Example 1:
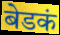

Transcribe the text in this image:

बेडकं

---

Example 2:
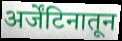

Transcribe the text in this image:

अर्जेंटिनातून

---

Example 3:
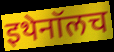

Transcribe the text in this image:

इथेनॉलच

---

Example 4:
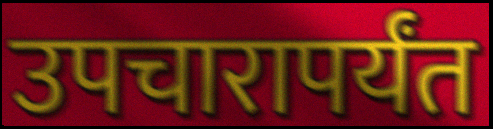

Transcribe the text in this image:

उपचारापर्यंत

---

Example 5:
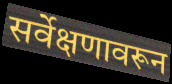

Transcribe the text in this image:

सर्वेक्षणावरून